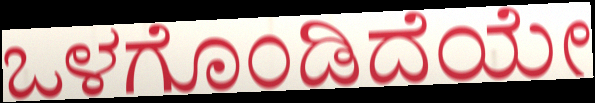
ಒಳಗೊಂಡಿದೆಯೇ